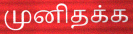
முனிதக்க